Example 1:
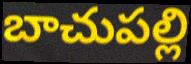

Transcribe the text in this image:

బాచుపల్లి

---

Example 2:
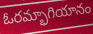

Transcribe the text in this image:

ఓరమ్భాగియానం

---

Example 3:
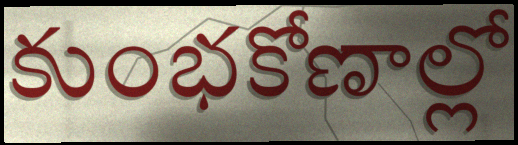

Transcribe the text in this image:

కుంభకోణాల్లో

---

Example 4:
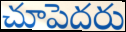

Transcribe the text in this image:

చూపెదరు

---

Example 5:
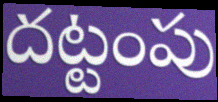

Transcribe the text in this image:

దట్టంపు